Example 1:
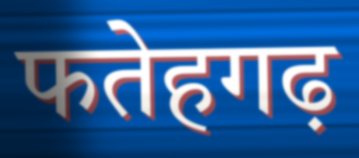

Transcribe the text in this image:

फतेहगढ़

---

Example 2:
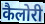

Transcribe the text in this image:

कैलोरी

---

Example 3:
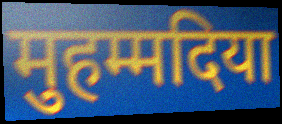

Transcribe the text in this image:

मुहम्मदिया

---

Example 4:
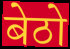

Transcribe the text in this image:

बेठो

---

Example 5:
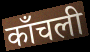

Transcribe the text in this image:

काँचली